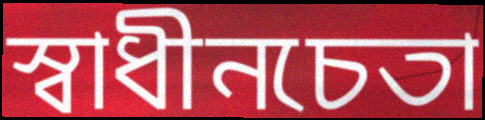
স্বাধীনচেতা